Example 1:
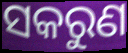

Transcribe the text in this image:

ସକରୁଣ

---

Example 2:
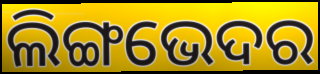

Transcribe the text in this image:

ଲିଙ୍ଗଭେଦର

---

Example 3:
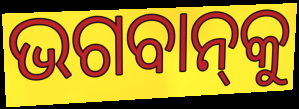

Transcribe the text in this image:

ଭଗବାନ୍‌କୁ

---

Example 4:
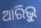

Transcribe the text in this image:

ଆରିଭୁ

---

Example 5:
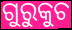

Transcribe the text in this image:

ଗୁରୁକୁଚ